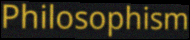
Philosophism